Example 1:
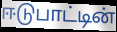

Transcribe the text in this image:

ஈடுபாட்டின்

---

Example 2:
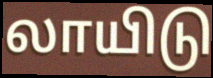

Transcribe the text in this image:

லாயிடு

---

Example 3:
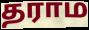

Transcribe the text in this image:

தராம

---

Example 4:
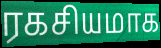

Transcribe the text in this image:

ரகசியமாக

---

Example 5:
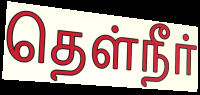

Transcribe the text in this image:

தெள்நீர்